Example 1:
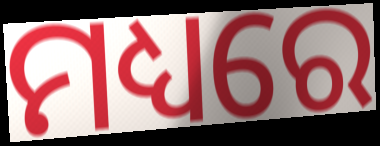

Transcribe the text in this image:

ମଧ୍ୟରେ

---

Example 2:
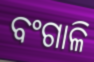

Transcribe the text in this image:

ବଂଗାଳି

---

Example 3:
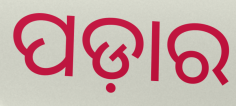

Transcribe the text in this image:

ପଡ଼ାର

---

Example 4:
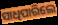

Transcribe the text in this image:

ସାଧିପାରିଲେ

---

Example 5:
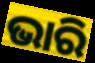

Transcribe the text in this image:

ଭାରି